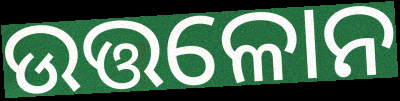
ଉତ୍ତଳୋନ